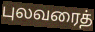
புலவரைத்